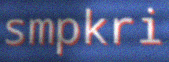
smpkri